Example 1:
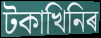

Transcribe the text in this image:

টকাখিনিৰ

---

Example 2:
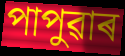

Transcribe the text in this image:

পাপুৱাৰ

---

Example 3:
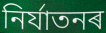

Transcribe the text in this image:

নিৰ্যাতনৰ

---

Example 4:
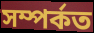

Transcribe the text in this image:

সম্পৰ্কত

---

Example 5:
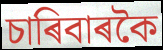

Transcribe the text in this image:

চাৰিবাৰকৈ